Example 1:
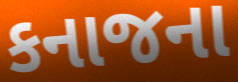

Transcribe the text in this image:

કનાજના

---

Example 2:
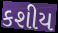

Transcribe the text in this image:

કશીય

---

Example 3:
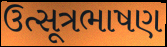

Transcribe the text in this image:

ઉત્સૂત્રભાષણ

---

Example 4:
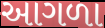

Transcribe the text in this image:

આગળા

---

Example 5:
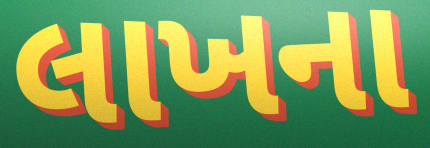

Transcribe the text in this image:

લાખના